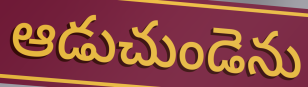
ఆడుచుండెను